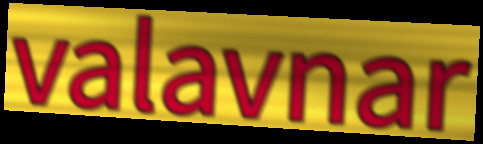
valavnar